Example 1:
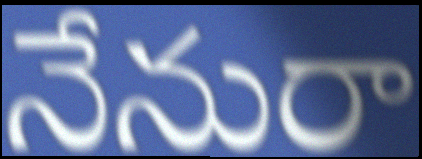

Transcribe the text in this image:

నేనురా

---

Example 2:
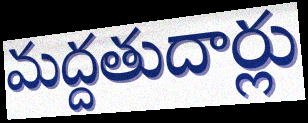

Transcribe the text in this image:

మద్దతుదార్లు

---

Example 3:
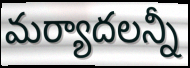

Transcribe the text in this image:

మర్యాదలన్నీ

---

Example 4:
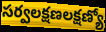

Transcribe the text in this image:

సర్వలక్షణలక్షణ్యో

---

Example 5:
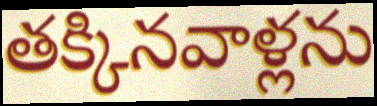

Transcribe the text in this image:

తక్కినవాళ్లను